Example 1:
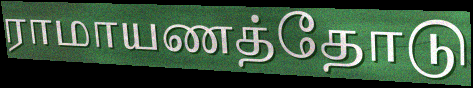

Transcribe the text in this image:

ராமாயணத்தோடு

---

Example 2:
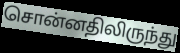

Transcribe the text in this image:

சொன்னதிலிருந்து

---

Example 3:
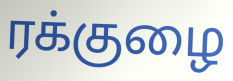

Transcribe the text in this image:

ரக்குழை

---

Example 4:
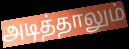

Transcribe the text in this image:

அடித்தாலும்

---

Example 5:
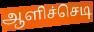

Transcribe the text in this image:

ஆளிச்செடி